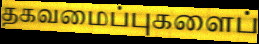
தகவமைப்புகளைப்